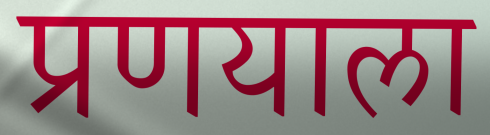
प्रणयाला